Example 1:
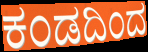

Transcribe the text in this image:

ಕಂಡದಿಂದ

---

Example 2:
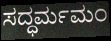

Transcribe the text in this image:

ಸದ್ಧರ್ಮಮಂ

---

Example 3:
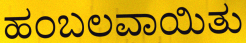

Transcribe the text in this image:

ಹಂಬಲವಾಯಿತು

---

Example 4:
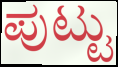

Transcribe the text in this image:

ಪುಟ್ಟು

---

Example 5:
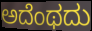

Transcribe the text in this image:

ಅದೆಂಥದು